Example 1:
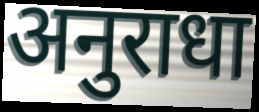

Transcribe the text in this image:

अनुराधा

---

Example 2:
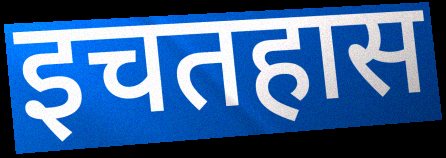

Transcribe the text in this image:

इचतहास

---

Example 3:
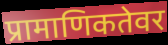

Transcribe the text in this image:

प्रामाणिकतेवर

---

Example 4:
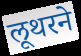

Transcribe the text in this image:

लूथरने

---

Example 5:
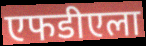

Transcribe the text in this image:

एफडीएला